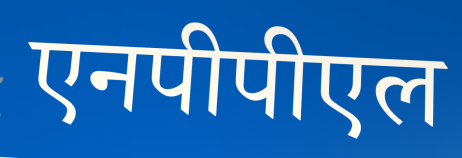
एनपीपीएल